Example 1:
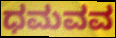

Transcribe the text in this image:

ಧಮವವ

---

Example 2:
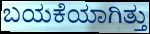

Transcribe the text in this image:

ಬಯಕೆಯಾಗಿತ್ತು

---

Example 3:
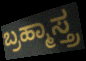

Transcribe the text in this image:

ಬ್ರಹ್ಮಾಸ್ತ್ರ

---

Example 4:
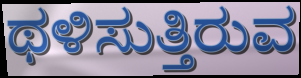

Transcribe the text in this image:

ಥಳಿಸುತ್ತಿರುವ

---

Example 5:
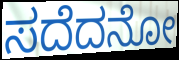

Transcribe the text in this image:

ಸದೆದನೋ